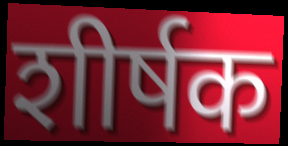
शीर्षक